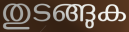
തുടങ്ങുക